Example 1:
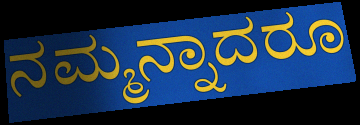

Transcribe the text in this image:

ನಮ್ಮನ್ನಾದರೂ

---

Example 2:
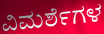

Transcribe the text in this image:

ವಿಮರ್ಶೆಗಳ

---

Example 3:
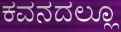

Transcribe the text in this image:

ಕವನದಲ್ಲೂ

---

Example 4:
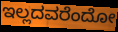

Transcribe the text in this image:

ಇಲ್ಲದವರೆಂದೋ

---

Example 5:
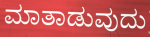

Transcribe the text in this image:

ಮಾತಾಡುವುದು